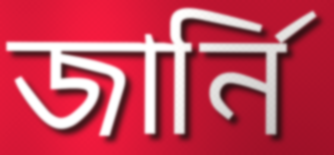
জার্নি